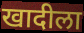
खादीला